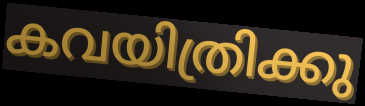
കവയിത്രിക്കു